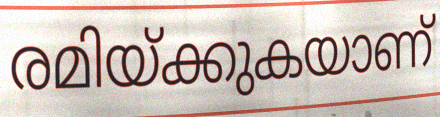
രമിയ്ക്കുകയാണ്